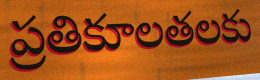
ప్రతికూలతలకు